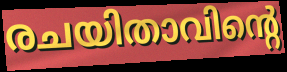
രചയിതാവിന്റെ